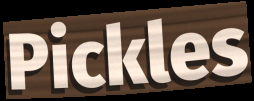
Pickles